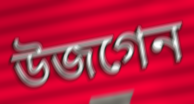
উজগেন